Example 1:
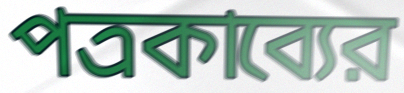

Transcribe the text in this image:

পত্রকাব্যের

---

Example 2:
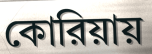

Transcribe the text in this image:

কোরিয়ায়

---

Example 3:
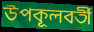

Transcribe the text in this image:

উপকূলবর্তী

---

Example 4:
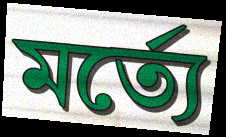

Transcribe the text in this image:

মর্ত্যে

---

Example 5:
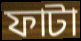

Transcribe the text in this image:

ফাটা